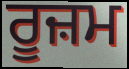
ਰੂਜ਼ਮ